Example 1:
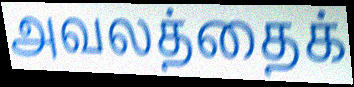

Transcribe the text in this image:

அவலத்தைக்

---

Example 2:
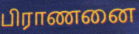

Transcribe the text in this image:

பிராணனை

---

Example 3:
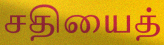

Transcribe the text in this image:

சதியைத்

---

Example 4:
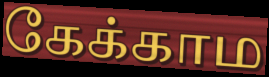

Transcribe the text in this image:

கேக்காம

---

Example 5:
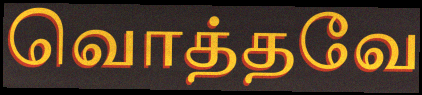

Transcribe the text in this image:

வொத்தவே